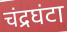
चंद्रघंटा